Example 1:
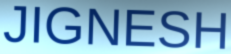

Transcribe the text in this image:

JIGNESH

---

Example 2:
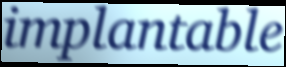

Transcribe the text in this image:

implantable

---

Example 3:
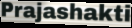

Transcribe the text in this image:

Prajashakti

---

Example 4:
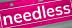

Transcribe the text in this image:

needless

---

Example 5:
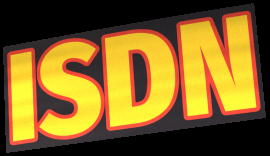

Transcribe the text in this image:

ISDN